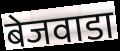
बेजवाडा